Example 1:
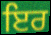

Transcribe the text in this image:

ਇਰ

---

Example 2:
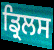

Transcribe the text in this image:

ਡ੍ਰਿਲਸ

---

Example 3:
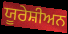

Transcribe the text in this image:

ਯੂਰੇਸ਼ੀਅਨ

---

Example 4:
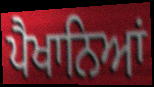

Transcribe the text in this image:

ਪੈਖਾਨਿਆਂ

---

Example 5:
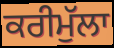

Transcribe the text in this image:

ਕਰੀਮੁੱਲਾ